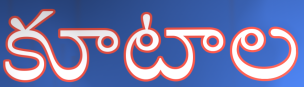
కూటాల